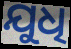
ଯୁଧି